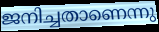
ജനിച്ചതാണെന്നു